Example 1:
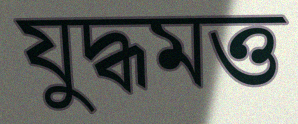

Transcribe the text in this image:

যুদ্ধমত্ত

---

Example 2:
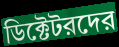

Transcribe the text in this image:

ডিক্টেটরদের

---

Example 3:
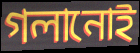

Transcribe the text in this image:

গলানোই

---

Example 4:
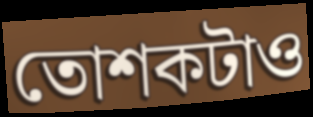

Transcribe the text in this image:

তোশকটাও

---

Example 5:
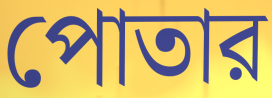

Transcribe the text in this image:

পোতার